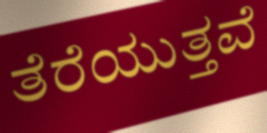
ತೆರೆಯುತ್ತವೆ